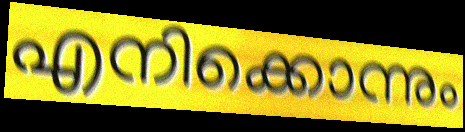
എനിക്കൊന്നും